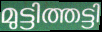
മുട്ടിത്തട്ടി